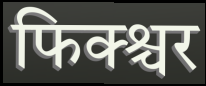
फिक्श्चर